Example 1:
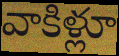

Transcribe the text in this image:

వాకిళ్లూ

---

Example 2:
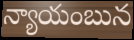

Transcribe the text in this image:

న్యాయంబున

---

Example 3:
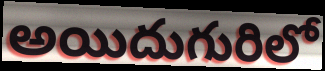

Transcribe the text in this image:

అయిదుగురిలో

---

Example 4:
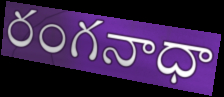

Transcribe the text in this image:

రంగనాధా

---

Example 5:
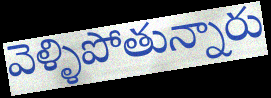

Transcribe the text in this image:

వెళ్ళిపోతున్నారు